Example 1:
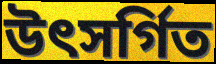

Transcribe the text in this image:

উৎসৰ্গিত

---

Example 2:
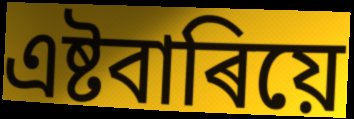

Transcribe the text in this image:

এষ্টবাৰিয়ে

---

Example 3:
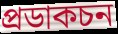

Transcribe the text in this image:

প্ৰডাকচন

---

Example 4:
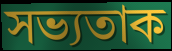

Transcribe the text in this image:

সভ্যতাক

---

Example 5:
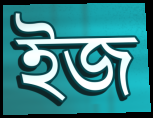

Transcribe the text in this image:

ইজ